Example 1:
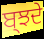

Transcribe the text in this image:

ਬ੍ਝਦੇ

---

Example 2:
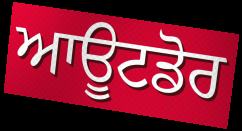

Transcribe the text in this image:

ਆਊਟਡੋਰ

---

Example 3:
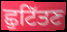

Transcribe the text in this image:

ਛੁਟਿੱਤਣ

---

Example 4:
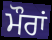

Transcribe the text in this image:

ਮੌਰਾਂ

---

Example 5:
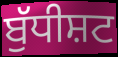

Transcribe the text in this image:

ਬੁੱਧੀਸ਼ਟ